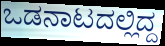
ಒಡನಾಟದಲ್ಲಿದ್ದ